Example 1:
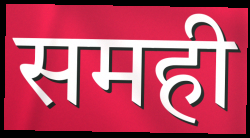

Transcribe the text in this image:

समही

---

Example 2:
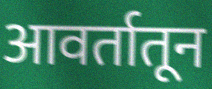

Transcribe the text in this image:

आवर्तातून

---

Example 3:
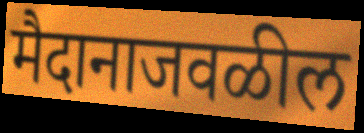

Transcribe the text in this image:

मैदानाजवळील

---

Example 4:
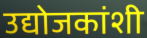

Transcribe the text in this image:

उद्योजकांशी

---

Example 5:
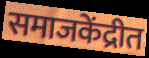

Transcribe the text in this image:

समाजकेंद्रीत